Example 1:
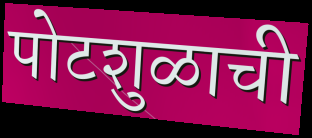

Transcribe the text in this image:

पोटशुळाची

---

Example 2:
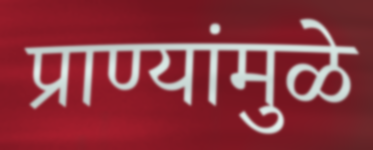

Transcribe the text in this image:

प्राण्यांमुळे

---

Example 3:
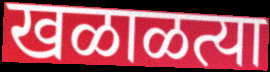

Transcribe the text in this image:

खळाळत्या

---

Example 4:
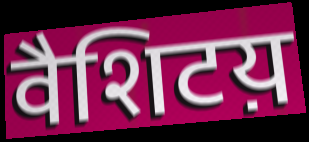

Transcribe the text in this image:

वैशिटय़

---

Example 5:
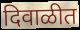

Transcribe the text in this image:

दिवाळीत